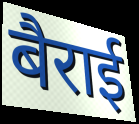
बैराई